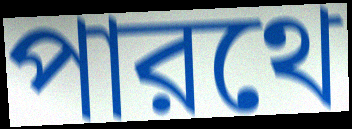
পারথে